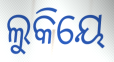
ଲୁକିୟେ